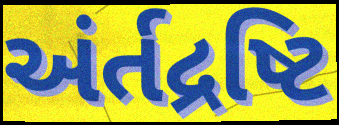
અંર્તદ્રષ્ટિ